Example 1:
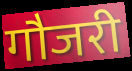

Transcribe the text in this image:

गौजरी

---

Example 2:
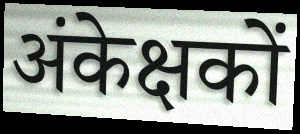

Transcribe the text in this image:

अंकेक्षकों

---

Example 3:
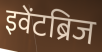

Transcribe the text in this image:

इवेंटब्रिज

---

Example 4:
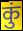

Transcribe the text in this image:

कुं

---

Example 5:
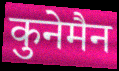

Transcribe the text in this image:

कुनेमैन